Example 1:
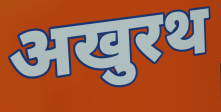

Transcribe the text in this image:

अखुरथ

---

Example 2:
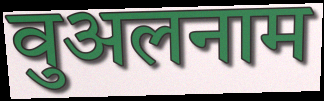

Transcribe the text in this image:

वुअलनाम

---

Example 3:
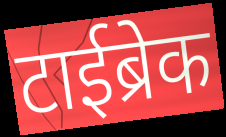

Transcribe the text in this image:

टाईब्रेक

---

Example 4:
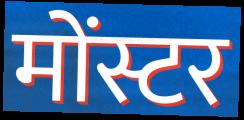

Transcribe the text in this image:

मोंस्टर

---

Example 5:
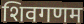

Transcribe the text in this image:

शिवगणम